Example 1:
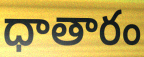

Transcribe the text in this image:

ధాతారం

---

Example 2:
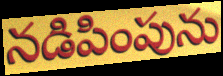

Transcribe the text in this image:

నడిపింపును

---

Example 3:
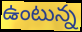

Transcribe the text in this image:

ఉంటున్న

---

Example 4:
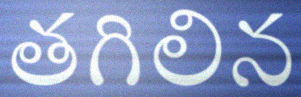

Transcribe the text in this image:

తగిలిన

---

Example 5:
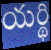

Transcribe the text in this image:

యర్థి